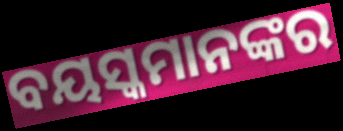
ବୟସ୍କମାନଙ୍କର